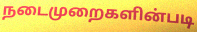
நடைமுறைகளின்படி